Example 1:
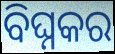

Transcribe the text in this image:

ବିଘ୍ନକର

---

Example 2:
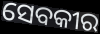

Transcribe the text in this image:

ସେବକୀର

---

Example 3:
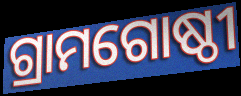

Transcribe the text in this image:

ଗ୍ରାମଗୋଷ୍ଠୀ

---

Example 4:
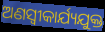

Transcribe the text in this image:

ଅଣସ୍ବୀକାର୍ଯ୍ୟଯୁକ୍ତ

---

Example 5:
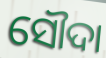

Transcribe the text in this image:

ସୌଦା